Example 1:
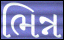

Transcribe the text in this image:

ભિન્ન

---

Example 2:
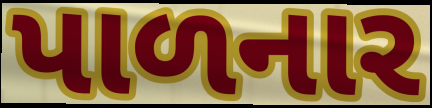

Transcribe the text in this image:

પાળનાર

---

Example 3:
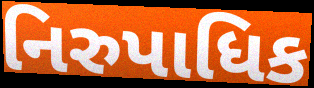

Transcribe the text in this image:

નિરુપાધિક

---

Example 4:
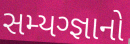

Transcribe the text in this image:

સમ્યગ્જ્ઞાનો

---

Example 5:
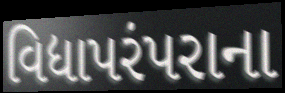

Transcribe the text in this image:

વિદ્યાપરંપરાના